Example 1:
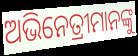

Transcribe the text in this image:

ଅଭିନେତ୍ରୀମାନଙ୍କୁ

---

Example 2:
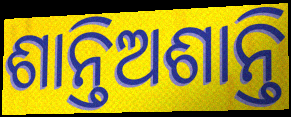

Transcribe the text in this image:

ଶାନ୍ତିଅଶାନ୍ତି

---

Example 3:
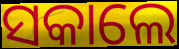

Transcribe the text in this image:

ସକାଲେ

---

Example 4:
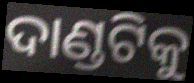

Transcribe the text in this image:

ଦାଣ୍ଡଟିକୁ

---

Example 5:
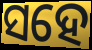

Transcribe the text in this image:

ସହେ